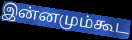
இன்னமும்கூட